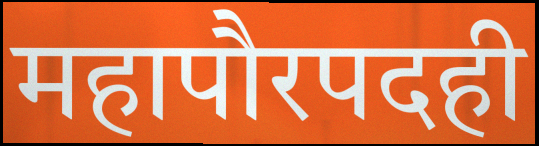
महापौरपदही